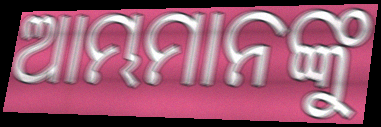
ଆମ୍ଭମାନଙ୍କୁ